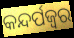
କନ୍ଦର୍ପଜ୍ବର